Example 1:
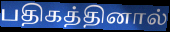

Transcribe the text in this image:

பதிகத்தினால்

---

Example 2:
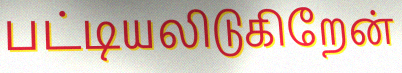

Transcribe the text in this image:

பட்டியலிடுகிறேன்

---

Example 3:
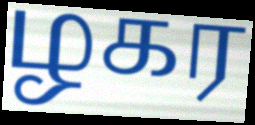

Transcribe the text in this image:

ழகர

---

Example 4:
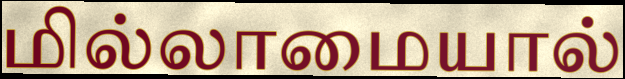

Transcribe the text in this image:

மில்லாமையால்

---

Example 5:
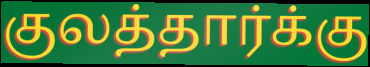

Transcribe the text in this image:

குலத்தார்க்கு